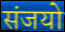
संजयो